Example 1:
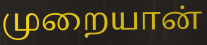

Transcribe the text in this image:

முறையான்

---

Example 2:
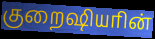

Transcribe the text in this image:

குறைஷியரின்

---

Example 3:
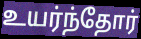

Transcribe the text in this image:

உயர்ந்தோர்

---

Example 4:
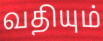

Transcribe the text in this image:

வதியும்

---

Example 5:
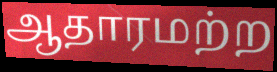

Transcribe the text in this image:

ஆதாரமற்ற